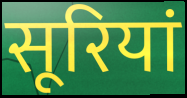
सूरियां